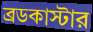
ব্রডকাস্টার